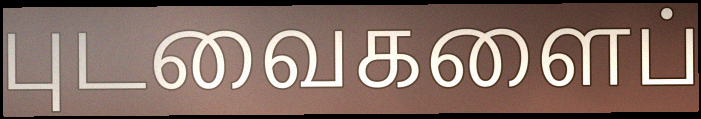
புடவைகளைப்